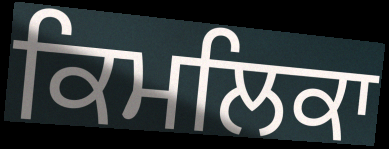
ਕਿਮਲਿਕਾ